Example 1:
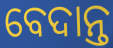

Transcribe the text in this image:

ବେଦାନ୍ତ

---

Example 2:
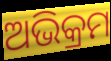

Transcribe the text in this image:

ଅଭିକ୍ରମ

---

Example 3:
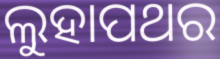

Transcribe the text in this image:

ଲୁହାପଥର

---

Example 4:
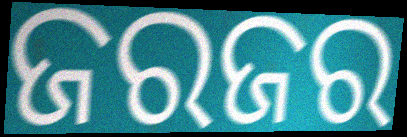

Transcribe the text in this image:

ଜରଜର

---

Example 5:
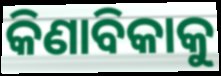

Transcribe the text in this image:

କିଣାବିକାକୁ